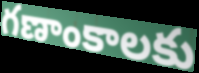
గణాంకాలకు